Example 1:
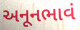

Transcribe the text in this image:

અનૂનભાવં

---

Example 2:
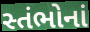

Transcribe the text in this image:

સ્તંભોનાં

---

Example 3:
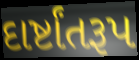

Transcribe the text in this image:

દાર્ષ્ટાંતરૂપ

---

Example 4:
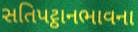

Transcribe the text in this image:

સતિપટ્ઠાનભાવના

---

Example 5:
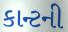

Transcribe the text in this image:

કાન્ટની